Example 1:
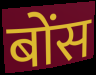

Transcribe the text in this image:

बोंस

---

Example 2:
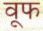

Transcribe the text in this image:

वूफ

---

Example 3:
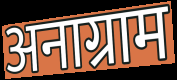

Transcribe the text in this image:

अनाग्राम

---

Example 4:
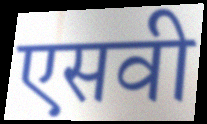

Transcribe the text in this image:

एसवी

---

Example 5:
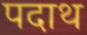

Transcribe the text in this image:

पदाथ